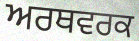
ਅਰਥਵਰਕ